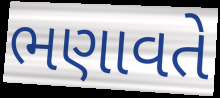
ભણાવતે